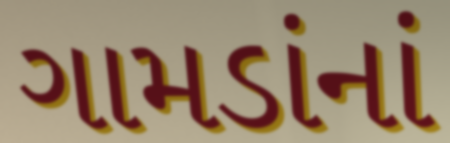
ગામડાંનાં